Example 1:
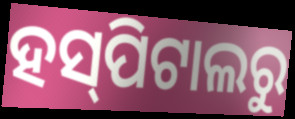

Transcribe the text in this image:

ହସ୍‍ପିଟାଲରୁ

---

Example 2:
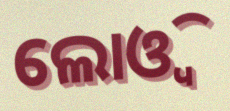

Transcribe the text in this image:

ଲୋଓ୍ବି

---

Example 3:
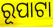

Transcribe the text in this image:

ରୂପାଟା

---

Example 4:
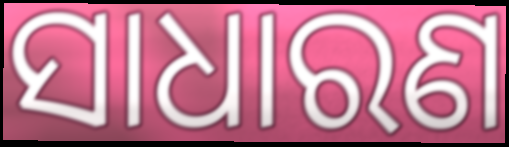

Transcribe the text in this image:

ସାଧାରଣ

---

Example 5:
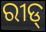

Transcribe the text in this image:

ରୀଡ୍